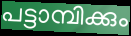
പട്ടാമ്പിക്കും